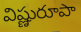
విష్ణురూపా